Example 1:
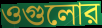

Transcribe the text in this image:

ওগুলোর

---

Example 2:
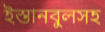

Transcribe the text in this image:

ইস্তানবুলসহ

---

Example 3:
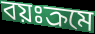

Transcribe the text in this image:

বয়ঃক্রমে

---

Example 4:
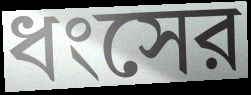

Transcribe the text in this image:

ধংসের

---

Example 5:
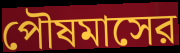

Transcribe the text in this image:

পৌষমাসের